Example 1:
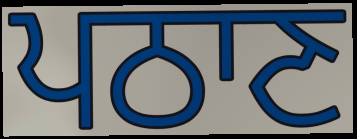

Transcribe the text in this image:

ਪਠਾਣ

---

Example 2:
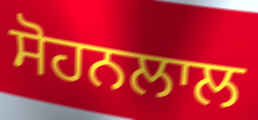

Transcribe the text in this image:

ਸੋਹਨਲਾਲ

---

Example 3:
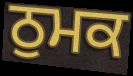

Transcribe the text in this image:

ਠੁਮਕ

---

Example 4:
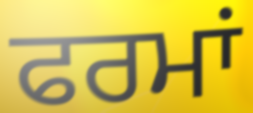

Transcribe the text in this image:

ਫਰਮਾਂ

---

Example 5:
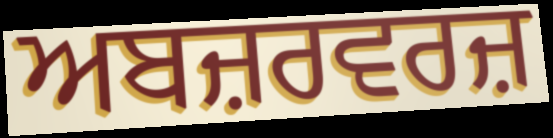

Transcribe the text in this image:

ਅਬਜ਼ਰਵਰਜ਼